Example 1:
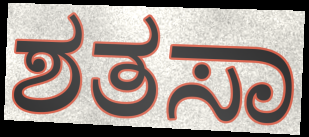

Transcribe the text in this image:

ಶತಸಾ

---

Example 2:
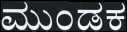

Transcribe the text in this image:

ಮುಂಡಕ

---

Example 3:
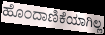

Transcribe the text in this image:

ಹೊಂದಾಣಿಕೆಯಾಗಿಲ್ಲ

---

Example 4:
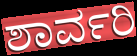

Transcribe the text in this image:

ಶಾರ್ವರಿ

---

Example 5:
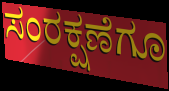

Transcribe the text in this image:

ಸಂರಕ್ಷಣೆಗೂ